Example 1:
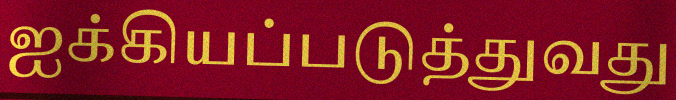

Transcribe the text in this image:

ஐக்கியப்படுத்துவது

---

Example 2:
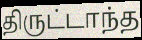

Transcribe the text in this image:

திருட்டாந்த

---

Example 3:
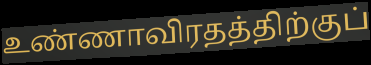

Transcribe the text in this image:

உண்ணாவிரதத்திற்குப்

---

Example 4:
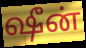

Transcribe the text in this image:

ஷீன்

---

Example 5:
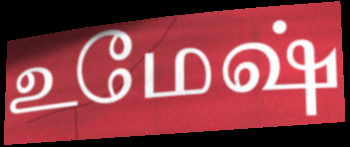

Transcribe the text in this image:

உமேஷ்